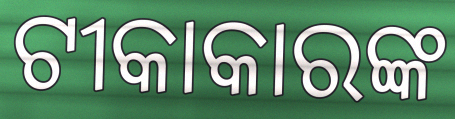
ଟୀକାକାରଙ୍କ